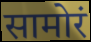
सामोरं